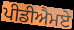
ਪੀਡੀਐਮਏ